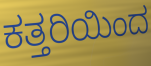
ಕತ್ತರಿಯಿಂದ